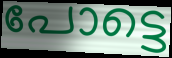
പോട്ടെ